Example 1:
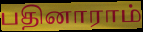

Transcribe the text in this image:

பதினாராம்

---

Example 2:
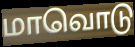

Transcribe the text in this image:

மாவொடு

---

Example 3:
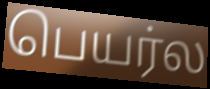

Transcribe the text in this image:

பெயர்ல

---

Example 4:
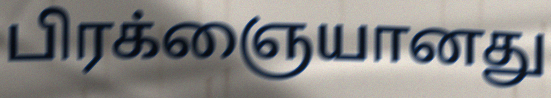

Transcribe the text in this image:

பிரக்ஞையானது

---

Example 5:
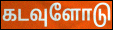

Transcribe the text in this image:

கடவுளோடு